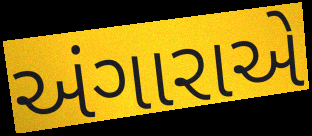
અંગારાએ